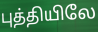
புத்தியிலே